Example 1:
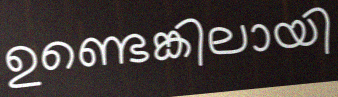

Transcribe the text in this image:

ഉണ്ടെങ്കിലായി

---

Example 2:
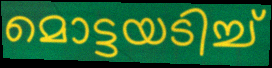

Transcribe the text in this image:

മൊട്ടയടിച്ച്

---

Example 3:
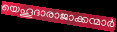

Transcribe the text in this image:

യെഹൂദാരാജാക്കന്മാർ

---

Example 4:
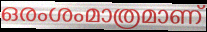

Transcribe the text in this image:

ഒരംശംമാത്രമാണ്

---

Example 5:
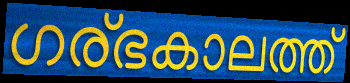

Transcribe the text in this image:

ഗര്ഭകാലത്ത്